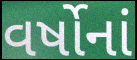
વર્ષોનાં